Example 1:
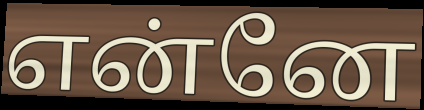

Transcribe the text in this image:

என்னே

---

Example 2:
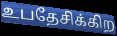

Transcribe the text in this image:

உபதேசிக்கிற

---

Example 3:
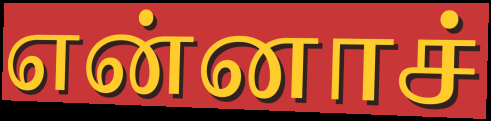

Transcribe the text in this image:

என்னாச்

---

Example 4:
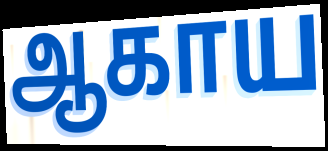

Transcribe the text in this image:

ஆகாய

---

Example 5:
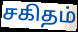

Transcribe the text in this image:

சகிதம்